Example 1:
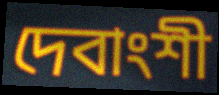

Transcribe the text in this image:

দেবাংশী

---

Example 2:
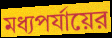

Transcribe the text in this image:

মধ্যপর্যায়ের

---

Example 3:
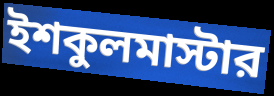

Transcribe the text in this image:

ইশকুলমাস্টার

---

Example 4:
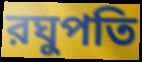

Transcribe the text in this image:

রঘুপতি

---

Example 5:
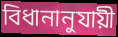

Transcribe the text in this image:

বিধানানুযায়ী